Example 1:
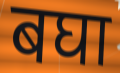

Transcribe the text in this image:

बघा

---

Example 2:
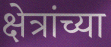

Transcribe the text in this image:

क्षेत्रांच्या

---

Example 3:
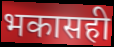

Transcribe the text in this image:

भकासही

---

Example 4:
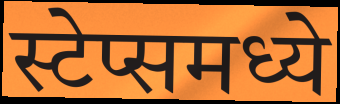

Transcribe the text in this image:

स्टेप्समध्ये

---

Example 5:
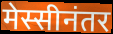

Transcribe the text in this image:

मेस्सीनंतर